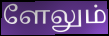
ளேலும்